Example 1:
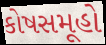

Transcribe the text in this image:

કોષસમૂહો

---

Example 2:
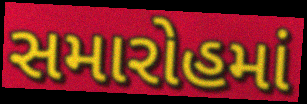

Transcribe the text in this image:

સમારોહમાં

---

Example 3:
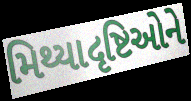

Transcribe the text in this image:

મિથ્યાદૃષ્ટિઓને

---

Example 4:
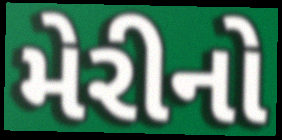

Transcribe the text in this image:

મેરીનો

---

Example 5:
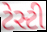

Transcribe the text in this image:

ટેસ્ટી